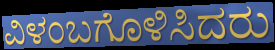
ವಿಳಂಬಗೊಳಿಸಿದರು